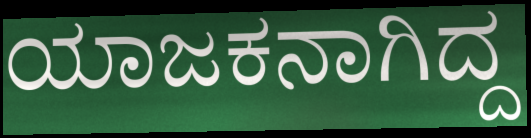
ಯಾಜಕನಾಗಿದ್ದ